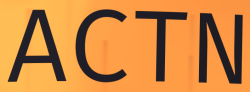
ACTN